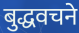
बुद्धवचने